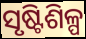
ସୃଷ୍ଟିଶିଳ୍ପ